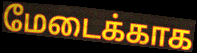
மேடைக்காக